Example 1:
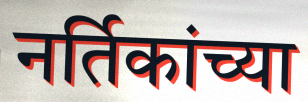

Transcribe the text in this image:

नर्तिकांच्या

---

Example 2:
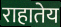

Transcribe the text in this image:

राहातेय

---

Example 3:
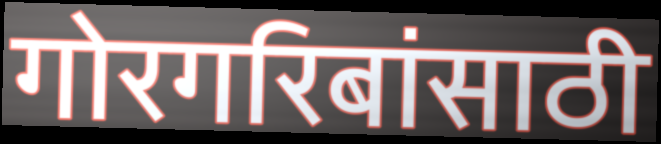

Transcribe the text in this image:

गोरगरिबांसाठी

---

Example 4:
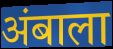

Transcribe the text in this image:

अंबाला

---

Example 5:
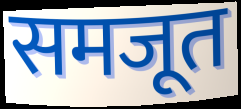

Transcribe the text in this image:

समजूत